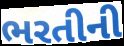
ભરતીની